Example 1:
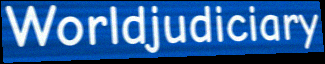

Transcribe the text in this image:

Worldjudiciary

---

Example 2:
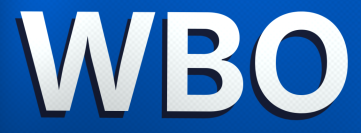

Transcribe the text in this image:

WBO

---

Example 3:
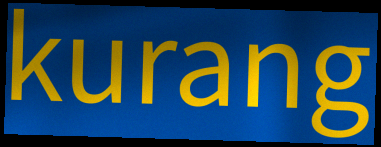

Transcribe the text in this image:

kurang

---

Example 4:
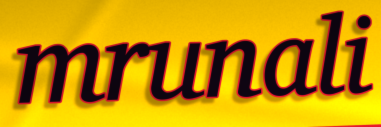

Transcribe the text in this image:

mrunali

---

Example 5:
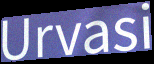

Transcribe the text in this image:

Urvasi